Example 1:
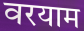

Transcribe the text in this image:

वरयाम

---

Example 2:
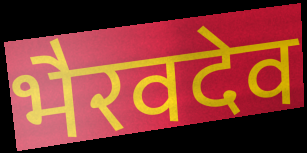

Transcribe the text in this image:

भैरवदेव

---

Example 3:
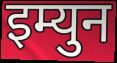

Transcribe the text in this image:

इम्‍युन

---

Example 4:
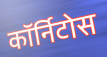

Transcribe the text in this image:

कॉर्निटोस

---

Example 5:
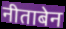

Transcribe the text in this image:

नीताबेन